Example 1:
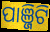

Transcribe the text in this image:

ପାଞ୍ଜିଟି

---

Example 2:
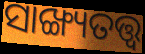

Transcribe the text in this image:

ସାଙ୍ଖ୍ୟତତ୍ତ୍ଵ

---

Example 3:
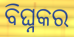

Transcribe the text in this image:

ବିଘ୍ନକର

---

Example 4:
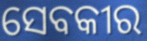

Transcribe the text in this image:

ସେବକୀର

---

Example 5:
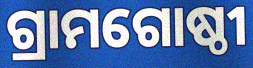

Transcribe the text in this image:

ଗ୍ରାମଗୋଷ୍ଠୀ